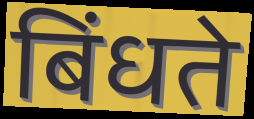
बिंधते